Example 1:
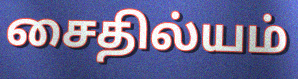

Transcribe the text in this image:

சைதில்யம்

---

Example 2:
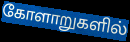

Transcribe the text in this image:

கோளாறுகளில்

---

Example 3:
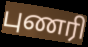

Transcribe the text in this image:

புணரி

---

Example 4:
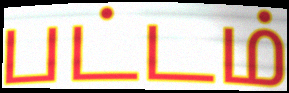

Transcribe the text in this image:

பட்டம்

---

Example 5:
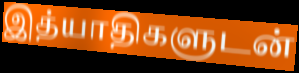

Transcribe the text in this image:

இத்யாதிகளுடன்